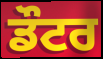
ਡੌਟਰ